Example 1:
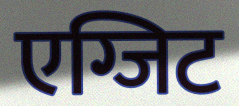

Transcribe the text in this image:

एग्जिट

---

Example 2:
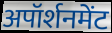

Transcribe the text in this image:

अपॉर्शनमेंट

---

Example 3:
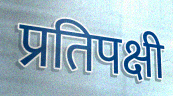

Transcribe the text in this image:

प्रतिपक्षी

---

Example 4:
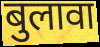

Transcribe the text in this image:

बुलावा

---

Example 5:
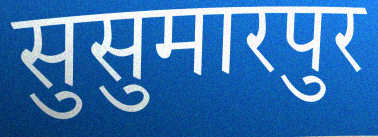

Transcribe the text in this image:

सुसुमारपुर